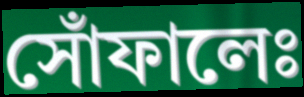
সোঁফালেঃ